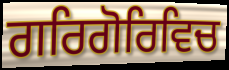
ਗਰਿਗੋਰਿਵਿਚ